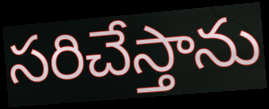
సరిచేస్తాను